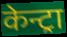
केन्ट्रा